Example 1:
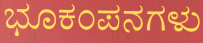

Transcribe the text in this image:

ಭೂಕಂಪನಗಳು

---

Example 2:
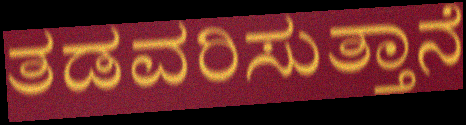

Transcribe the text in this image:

ತಡವರಿಸುತ್ತಾನೆ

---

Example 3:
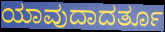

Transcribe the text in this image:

ಯಾವುದಾದರ್ತೂ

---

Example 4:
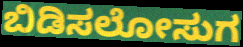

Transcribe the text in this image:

ಬಿಡಿಸಲೋಸುಗ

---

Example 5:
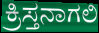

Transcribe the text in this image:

ಕ್ರಿಸ್ತನಾಗಲಿ